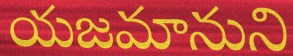
యజమానుని